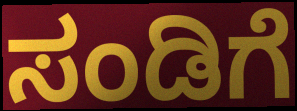
ಸಂಡಿಗೆ